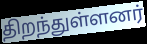
திறந்துள்ளனர்